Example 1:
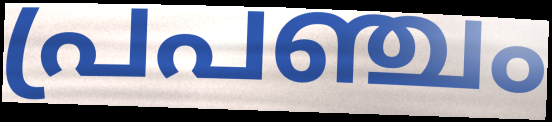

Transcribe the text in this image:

പ്രപഞ്ചം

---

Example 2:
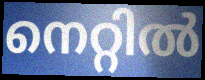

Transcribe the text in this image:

നെറ്റിൽ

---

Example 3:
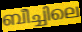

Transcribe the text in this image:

ബീച്ചിലെ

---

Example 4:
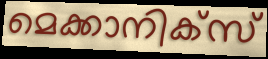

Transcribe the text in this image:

മെക്കാനിക്സ്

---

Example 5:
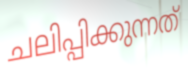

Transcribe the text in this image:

ചലിപ്പിക്കുന്നത്